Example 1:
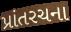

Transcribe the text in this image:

પ્રાંતરચના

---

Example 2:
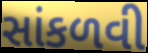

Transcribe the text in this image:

સાંકળવી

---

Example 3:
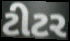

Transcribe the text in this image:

ટીટર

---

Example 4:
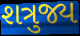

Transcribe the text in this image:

શત્રુજ્ય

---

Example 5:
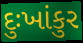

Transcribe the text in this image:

દુઃખાંકુર